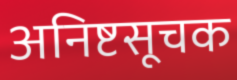
अनिष्टसूचक